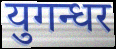
युगन्धर